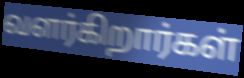
வளர்கிறார்கள்